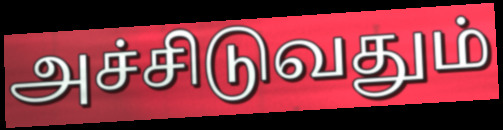
அச்சிடுவதும்